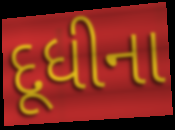
દૂધીના